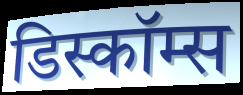
डिस्कॉम्स